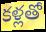
కళ్లతో